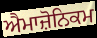
ਐਮਾਜ਼ੋਨਿਕਮ